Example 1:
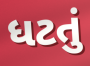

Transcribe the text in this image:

ધટતું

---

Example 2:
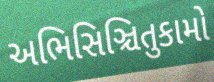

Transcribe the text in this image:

અભિસિઞ્ચિતુકામો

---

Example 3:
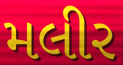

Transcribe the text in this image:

મલીર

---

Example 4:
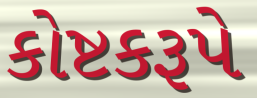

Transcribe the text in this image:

કોષ્ટકરૂપે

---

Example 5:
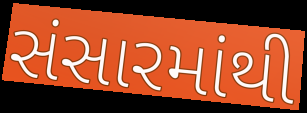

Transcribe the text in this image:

સંસારમાંથી